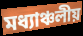
মধ্যাঞ্চলীয়